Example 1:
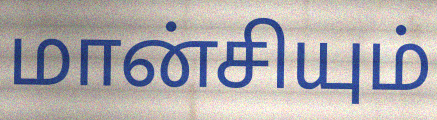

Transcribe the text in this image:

மான்சியும்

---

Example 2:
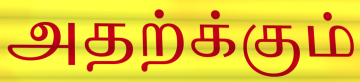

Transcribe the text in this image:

அதற்க்கும்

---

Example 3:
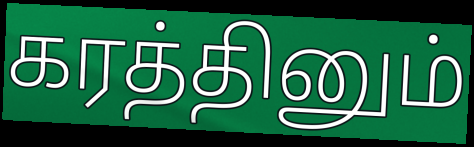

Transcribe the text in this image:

கரத்தினும்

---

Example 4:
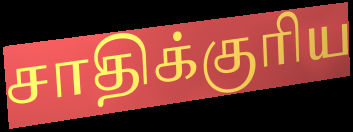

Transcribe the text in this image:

சாதிக்குரிய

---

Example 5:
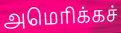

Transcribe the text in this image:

அமெரிக்கச்